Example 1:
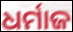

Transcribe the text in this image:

ଧର୍ମାଜ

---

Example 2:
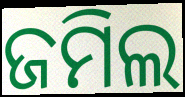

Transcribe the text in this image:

ଜମିଲ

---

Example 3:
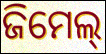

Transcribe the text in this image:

ଜିମେଲ୍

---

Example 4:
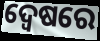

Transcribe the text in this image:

ଦ୍ୱେଷରେ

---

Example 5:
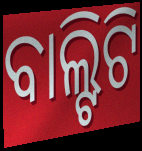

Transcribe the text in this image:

ବାଲ୍ଟିଟି